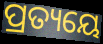
ପ୍ରତ୍ୟୟେ